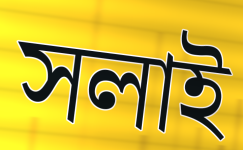
সলাই